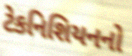
ટેકનિશિયનનો